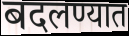
बदलण्यात